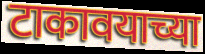
टाकावयाच्या